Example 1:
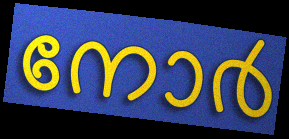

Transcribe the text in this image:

നോർ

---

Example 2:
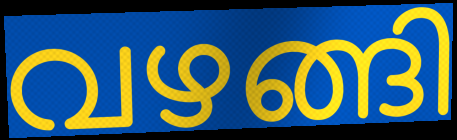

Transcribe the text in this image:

വഴങ്ങി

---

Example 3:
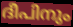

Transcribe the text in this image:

ദീപിനും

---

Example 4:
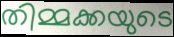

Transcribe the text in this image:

തിമ്മക്കയുടെ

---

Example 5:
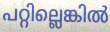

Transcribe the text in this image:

പറ്റില്ലെങ്കിൽ